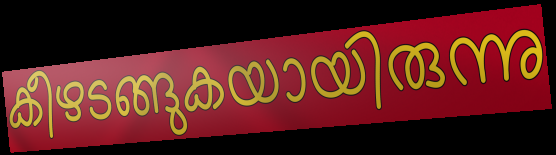
കീഴടങ്ങുകയായിരുന്നു